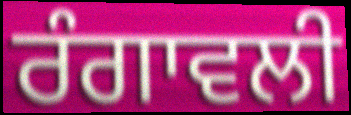
ਰੰਗਾਵਲੀ